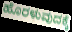
ಹೊರಳುವುದಕ್ಕೆ